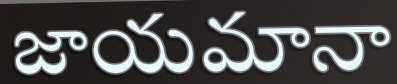
జాయమానా